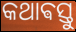
କଥାଵସ୍ତୁ